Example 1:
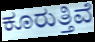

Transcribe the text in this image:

ಕೂರುತ್ತಿವೆ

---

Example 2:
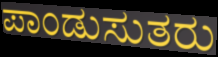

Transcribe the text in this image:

ಪಾಂಡುಸುತರು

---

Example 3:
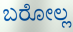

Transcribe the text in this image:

ಬರೋಲ್ಲ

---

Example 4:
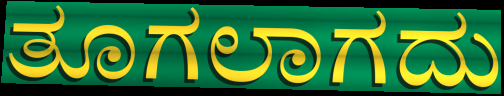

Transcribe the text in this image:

ತೂಗಲಾಗದು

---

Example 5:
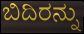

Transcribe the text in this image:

ಬಿದಿರನ್ನು